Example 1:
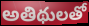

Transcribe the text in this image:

అతిథులతో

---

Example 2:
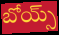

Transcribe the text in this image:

బోయ్స్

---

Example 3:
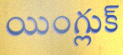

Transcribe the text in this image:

యింగ్లుక్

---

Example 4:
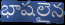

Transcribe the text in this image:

భాషలైన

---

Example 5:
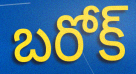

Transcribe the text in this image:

బరోక్